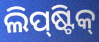
ଲିପ୍‍ଷ୍ଟିକ୍